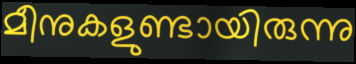
മീനുകളുണ്ടായിരുന്നു